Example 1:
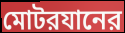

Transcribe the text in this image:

মোটরযানের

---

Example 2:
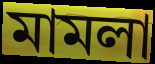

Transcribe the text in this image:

মামলা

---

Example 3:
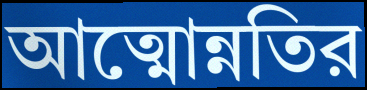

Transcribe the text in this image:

আত্মোন্নতির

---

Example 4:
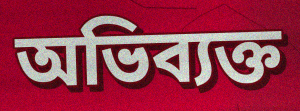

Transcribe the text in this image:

অভিব্যক্ত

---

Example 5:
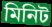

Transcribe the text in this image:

মিনিট